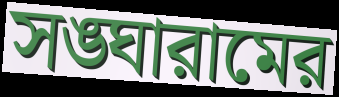
সঙ্ঘারামের